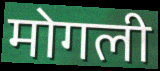
मोगली